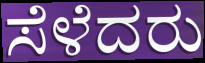
ಸೆಳೆದರು